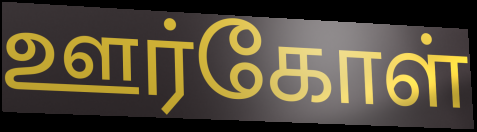
ஊர்கோள்